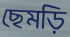
ছেমড়ি